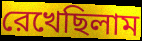
রেখেছিলাম